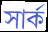
সার্ক